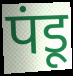
पंडू